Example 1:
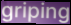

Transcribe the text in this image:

griping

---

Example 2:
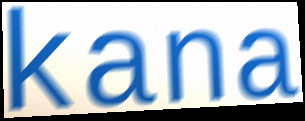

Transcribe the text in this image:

kana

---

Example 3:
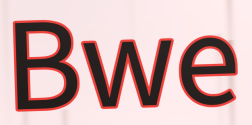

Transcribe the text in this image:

Bwe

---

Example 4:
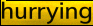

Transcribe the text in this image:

hurrying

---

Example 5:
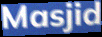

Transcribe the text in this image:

Masjid